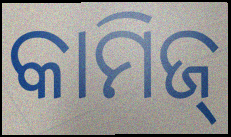
କାମିଜ୍